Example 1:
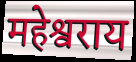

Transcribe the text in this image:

महेश्वराय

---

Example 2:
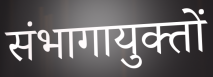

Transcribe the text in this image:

संभागायुक्तों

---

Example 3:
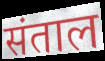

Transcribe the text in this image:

संताल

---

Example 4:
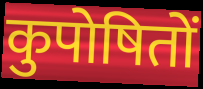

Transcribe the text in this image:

कुपोषितों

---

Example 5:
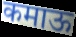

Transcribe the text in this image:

कमाऊ